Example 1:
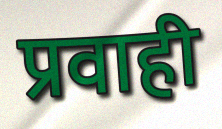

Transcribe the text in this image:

प्रवाही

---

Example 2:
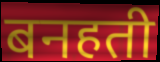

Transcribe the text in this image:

बनहती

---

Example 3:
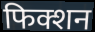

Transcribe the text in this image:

फिक्‍शन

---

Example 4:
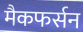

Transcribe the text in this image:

मैकफर्सन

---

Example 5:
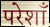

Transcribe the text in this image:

परेशाँ